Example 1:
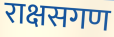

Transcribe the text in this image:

राक्षसगण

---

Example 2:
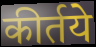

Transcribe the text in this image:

कीर्तये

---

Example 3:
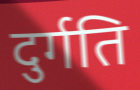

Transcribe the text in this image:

दुर्गति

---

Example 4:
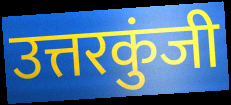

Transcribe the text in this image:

उत्तरकुंजी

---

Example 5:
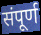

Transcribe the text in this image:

संपूर्ण